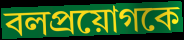
বলপ্রয়োগকে